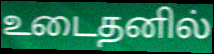
உடைதனில்